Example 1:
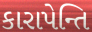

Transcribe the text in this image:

કારાપેન્તિ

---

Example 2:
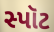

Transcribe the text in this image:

સ્પૉટ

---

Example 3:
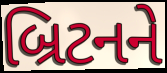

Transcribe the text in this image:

બ્રિટનને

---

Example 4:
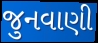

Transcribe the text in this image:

જુનવાણી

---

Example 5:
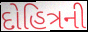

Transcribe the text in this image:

દોહિત્રની